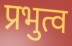
प्रभुत्व